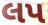
લપ